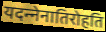
यदन्नेनातिरोहति